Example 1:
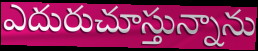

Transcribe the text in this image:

ఎదురుచూస్తున్నాను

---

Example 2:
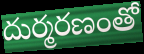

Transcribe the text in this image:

దుర్మరణంతో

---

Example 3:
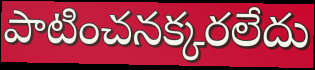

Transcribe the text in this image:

పాటించనక్కరలేదు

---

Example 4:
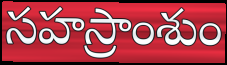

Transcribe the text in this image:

సహస్రాంశుం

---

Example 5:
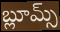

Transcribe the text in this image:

బ్లూమ్స్